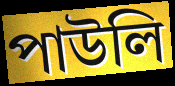
পাউলি